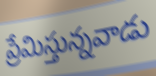
ప్రేమిస్తున్నవాడు